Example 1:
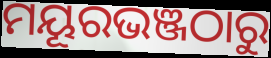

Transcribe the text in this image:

ମୟୂରଭଞ୍ଜଠାରୁ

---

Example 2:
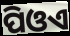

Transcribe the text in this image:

ପିଓଏ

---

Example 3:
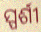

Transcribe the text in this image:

ସ୍ପର୍ଶୀ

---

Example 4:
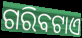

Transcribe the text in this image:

ଗରିବଟାଏ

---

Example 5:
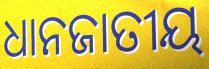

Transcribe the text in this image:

ଧାନଜାତୀୟ